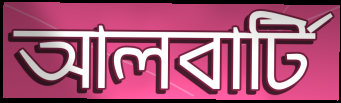
আলবার্টি